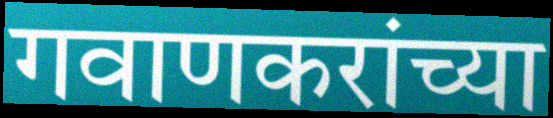
गवाणकरांच्या